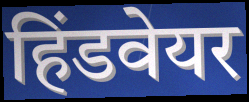
हिंडवेयर